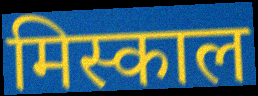
मिस्काल